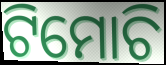
ଟିମୋଚି